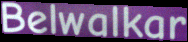
Belwalkar